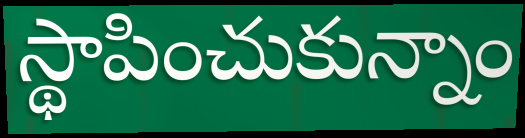
స్థాపించుకున్నాం